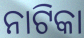
ନାଟିକା